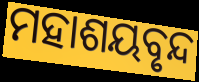
ମହାଶୟବୃନ୍ଦ